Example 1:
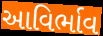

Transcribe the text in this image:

આવિર્ભાવ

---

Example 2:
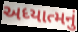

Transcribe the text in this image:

અધ્યાત્મનું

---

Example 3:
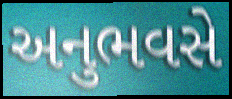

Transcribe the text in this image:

અનુભવસે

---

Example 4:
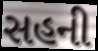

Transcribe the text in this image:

સહની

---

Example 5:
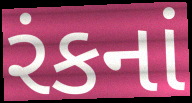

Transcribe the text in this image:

રંકનાં